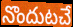
నొందుటచే